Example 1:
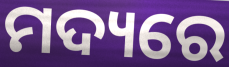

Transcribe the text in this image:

ମଦ୍ୟରେ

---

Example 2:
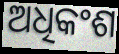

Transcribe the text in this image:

ଅଧିକଂଶ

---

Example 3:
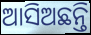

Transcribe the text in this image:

ଆସିଅଛନ୍ତି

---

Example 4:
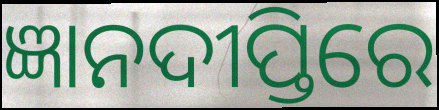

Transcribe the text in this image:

ଜ୍ଞାନଦୀପ୍ତିରେ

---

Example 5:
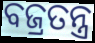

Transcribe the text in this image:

ବଜ୍ରତନ୍ତ୍ର